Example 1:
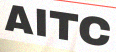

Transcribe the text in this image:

AITC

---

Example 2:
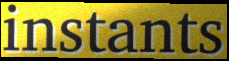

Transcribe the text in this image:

instants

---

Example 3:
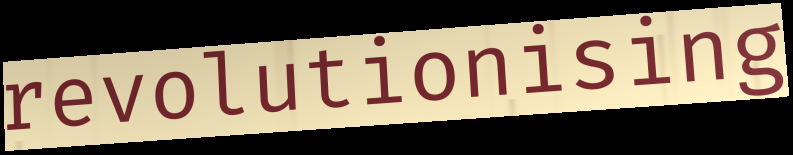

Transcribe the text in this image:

revolutionising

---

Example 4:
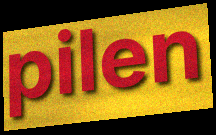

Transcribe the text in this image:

pilen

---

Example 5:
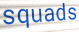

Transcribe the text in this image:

squads